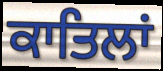
ਕਾਤਿਲਾਂ